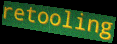
retooling